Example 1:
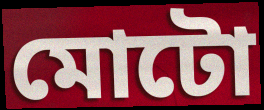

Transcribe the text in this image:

মোটো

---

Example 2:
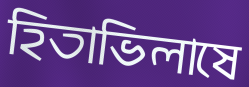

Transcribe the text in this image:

হিতাভিলাষে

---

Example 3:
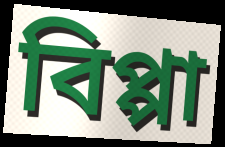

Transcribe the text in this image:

বিপ্পা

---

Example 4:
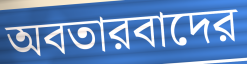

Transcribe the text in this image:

অবতারবাদের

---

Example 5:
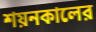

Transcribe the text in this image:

শয়নকালের